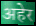
अहेर